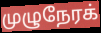
முழுநேரக்